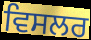
ਵਿਸਲਰ